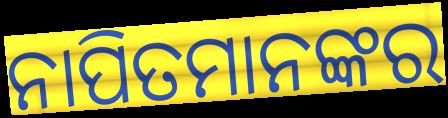
ନାପିତମାନଙ୍କର